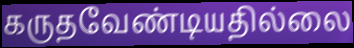
கருதவேண்டியதில்லை